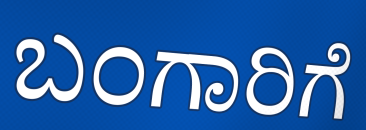
ಬಂಗಾರಿಗೆ